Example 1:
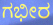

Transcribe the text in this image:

ಗಭೀರ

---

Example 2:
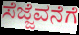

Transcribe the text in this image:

ಸೆಜ್ಜೆವನೆಗೆ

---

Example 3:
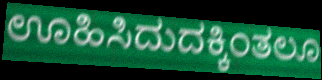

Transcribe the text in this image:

ಊಹಿಸಿದುದಕ್ಕಿಂತಲೂ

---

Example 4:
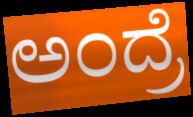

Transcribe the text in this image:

ಅಂದ್ರೆ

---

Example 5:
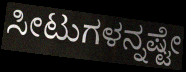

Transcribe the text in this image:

ಸೀಟುಗಳನ್ನಷ್ಟೇ